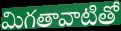
మిగతావాటితో